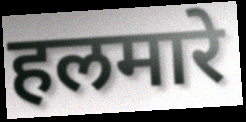
हलमारे